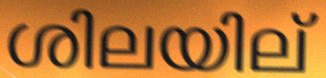
ശിലയില്